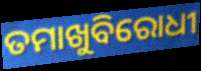
ତମାଖୁବିରୋଧୀ